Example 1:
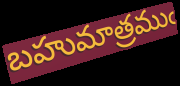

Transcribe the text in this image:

బహుమాత్రముఁ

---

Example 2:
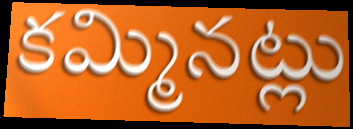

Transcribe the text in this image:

కమ్మినట్లు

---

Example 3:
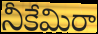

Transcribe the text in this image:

నీకేమిరా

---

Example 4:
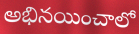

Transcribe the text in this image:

అభినయించాలో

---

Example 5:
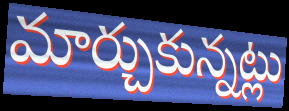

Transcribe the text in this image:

మార్చుకున్నట్లు